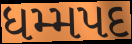
ધમ્મપદ